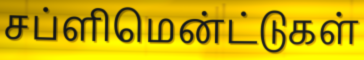
சப்ளிமென்ட்டுகள்